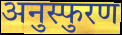
अनुस्फुरण